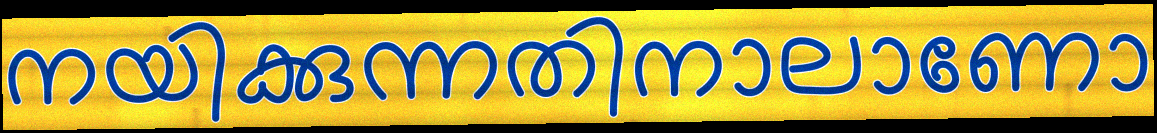
നയിക്കുന്നതിനാലാണോ